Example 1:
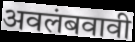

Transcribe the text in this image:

अवलंबवावी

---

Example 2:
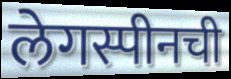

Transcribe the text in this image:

लेगस्पीनची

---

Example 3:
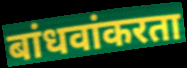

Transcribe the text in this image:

बांधवांकरता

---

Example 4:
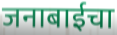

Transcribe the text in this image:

जनाबाईचा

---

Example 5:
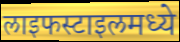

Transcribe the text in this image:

लाइफस्टाइलमध्ये